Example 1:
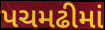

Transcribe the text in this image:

પચમઢીમાં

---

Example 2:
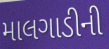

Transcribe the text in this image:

માલગાડીની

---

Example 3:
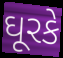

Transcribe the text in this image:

ઘૂરકે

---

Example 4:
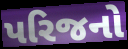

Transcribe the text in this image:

પરિજનો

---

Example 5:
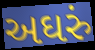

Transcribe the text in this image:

અઘરું